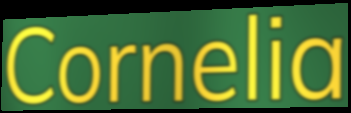
Cornelia